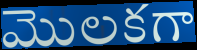
మొలకగా